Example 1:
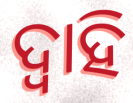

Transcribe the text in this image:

ଦ୍ଵାହି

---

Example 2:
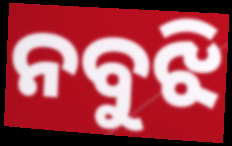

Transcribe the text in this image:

ନବୁଝି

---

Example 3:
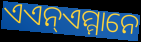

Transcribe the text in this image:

ଏଏନ୍ଏମ୍ମାନେ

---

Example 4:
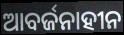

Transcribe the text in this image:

ଆବର୍ଜନାହୀନ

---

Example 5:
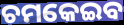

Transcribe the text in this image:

ଚମକେଇବ